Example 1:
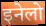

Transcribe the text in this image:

इनेलो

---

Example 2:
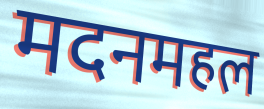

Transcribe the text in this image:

मदनमहल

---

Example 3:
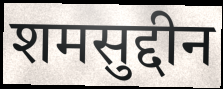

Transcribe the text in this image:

शमसुद्दीन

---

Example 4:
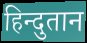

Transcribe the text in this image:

हिन्दुतान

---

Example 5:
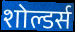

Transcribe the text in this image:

शोल्डर्स